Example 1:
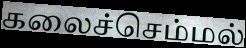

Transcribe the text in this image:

கலைச்செம்மல்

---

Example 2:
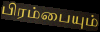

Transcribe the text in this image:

பிரம்பையும்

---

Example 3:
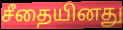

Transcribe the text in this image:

சீதையினது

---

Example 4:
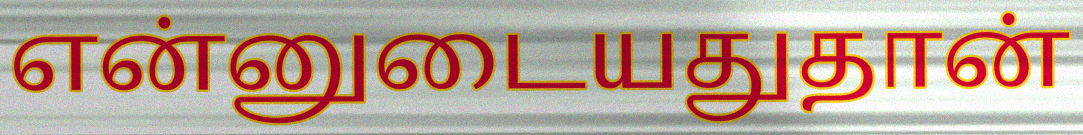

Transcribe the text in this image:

என்னுடையதுதான்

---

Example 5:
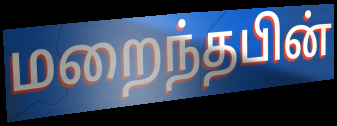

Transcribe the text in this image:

மறைந்தபின்